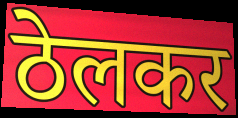
ठेलकर